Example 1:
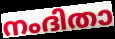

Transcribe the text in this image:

നംദിതാ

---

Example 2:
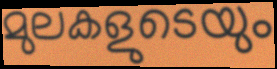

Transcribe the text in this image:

മുലകളുടെയും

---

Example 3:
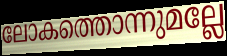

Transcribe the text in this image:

ലോകത്തൊന്നുമല്ലേ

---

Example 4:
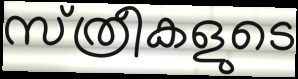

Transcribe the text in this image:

സ്‌ത്രീകളുടെ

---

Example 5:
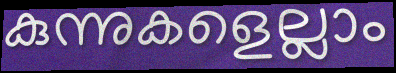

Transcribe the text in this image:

കുന്നുകളെല്ലാം